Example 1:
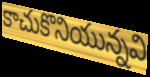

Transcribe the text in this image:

కాచుకొనియున్నవి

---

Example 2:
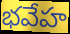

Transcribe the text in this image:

భవేహ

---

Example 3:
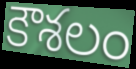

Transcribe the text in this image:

కౌశలం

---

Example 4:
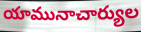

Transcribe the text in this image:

యామునాచార్యుల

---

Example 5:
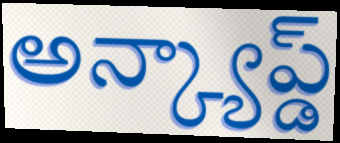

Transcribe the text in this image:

అన్క్యాప్డ్